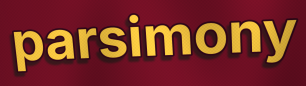
parsimony